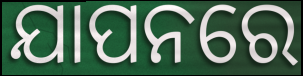
ଯାପନରେ